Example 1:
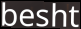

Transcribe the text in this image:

besht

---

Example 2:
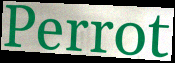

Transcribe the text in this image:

Perrot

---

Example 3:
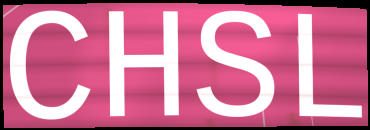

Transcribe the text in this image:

CHSL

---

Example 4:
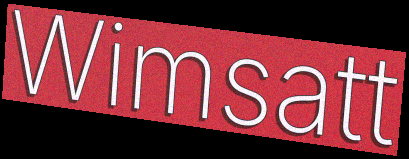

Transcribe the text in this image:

Wimsatt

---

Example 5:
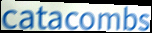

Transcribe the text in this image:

catacombs